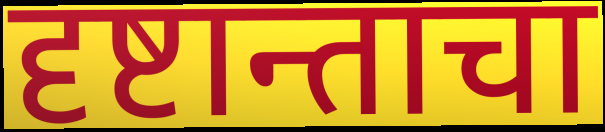
दृष्टान्ताचा